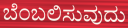
ಬೆಂಬಲಿಸುವುದು